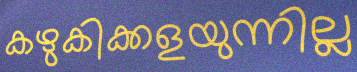
കഴുകിക്കളയുന്നില്ല